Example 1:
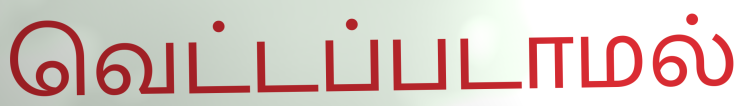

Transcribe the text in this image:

வெட்டப்படாமல்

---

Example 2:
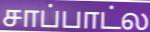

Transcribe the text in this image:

சாப்பாட்ல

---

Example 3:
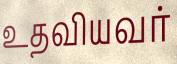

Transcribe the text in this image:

உதவியவர்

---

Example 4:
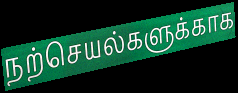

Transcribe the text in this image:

நற்செயல்களுக்காக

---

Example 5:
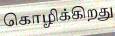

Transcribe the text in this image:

கொழிக்கிறது